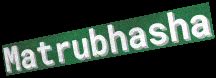
Matrubhasha